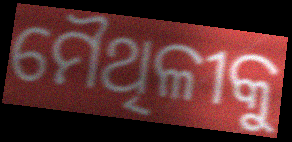
ମୈଥିଳୀକୁ